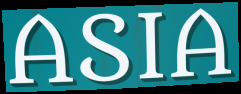
ASIA